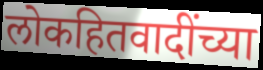
लोकहितवादींच्या